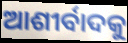
ଆଶୀର୍ବାଦକୁ